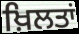
ਖ਼ਿਲਤਾਂ